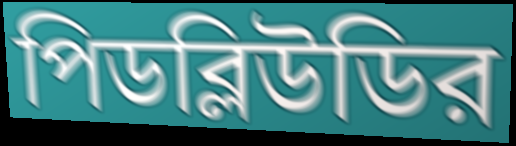
পিডব্লিউডির